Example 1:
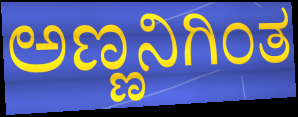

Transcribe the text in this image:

ಅಣ್ಣನಿಗಿಂತ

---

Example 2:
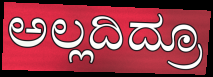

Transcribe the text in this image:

ಅಲ್ಲದಿದ್ರೂ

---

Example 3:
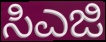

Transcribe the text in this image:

ಸಿಎಜಿ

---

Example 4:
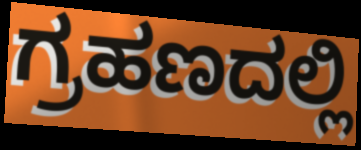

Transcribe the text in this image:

ಗ್ರಹಣದಲ್ಲಿ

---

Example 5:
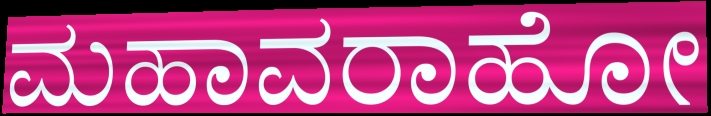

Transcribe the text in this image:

ಮಹಾವರಾಹೋ